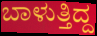
ಬಾಳುತ್ತಿದ್ದ